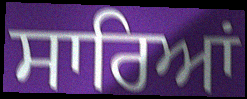
ਸਾਰਿਆਂ